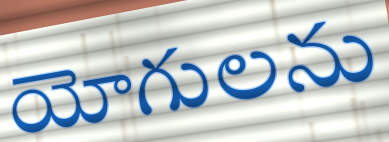
యోగులను